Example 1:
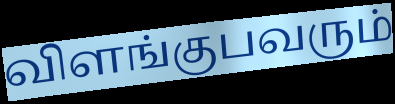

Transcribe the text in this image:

விளங்குபவரும்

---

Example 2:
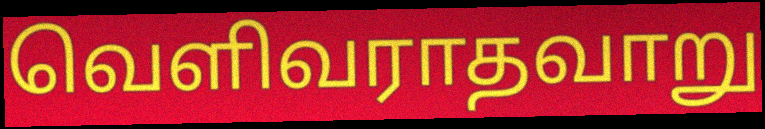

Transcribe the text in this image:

வெளிவராதவாறு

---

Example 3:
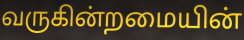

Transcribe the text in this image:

வருகின்றமையின்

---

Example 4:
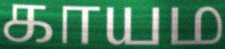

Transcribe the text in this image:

காயம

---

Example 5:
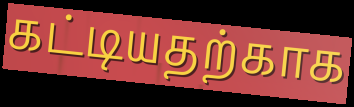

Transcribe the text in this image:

கட்டியதற்காக